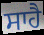
ਸਾਹੈ